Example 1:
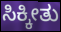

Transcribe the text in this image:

ಸಿಕ್ಕೀತು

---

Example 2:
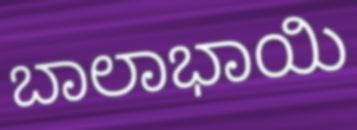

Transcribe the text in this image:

ಬಾಲಾಭಾಯಿ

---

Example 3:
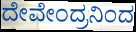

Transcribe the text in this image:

ದೇವೇಂದ್ರನಿಂದ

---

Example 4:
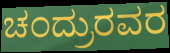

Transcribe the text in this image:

ಚಂದ್ರುರವರ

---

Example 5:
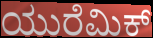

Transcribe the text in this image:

ಯುರೆಮಿಕ್